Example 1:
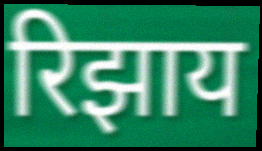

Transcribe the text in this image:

रिझाय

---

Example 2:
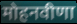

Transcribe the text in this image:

मोहनवीणा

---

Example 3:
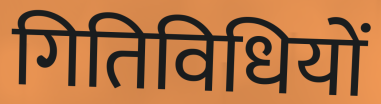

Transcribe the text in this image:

गितिविधियों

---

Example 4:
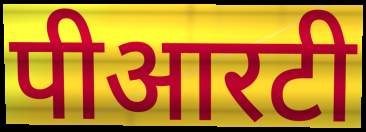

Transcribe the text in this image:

पीआरटी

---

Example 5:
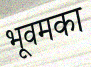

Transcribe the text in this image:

भूवमका